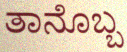
ತಾನೊಬ್ಬ